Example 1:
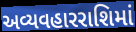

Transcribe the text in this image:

અવ્યવહારરાશિમાં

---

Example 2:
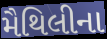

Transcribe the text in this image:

મૈથિલીના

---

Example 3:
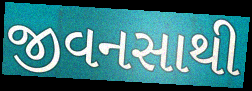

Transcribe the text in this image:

જીવનસાથી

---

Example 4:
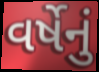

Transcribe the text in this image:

વર્ષેનું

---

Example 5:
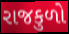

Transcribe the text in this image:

રાજકુળો